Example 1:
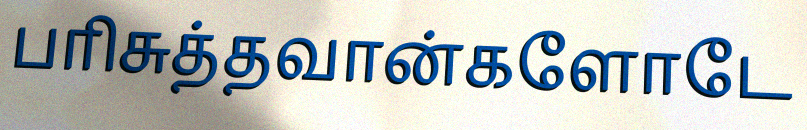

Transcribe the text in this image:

பரிசுத்தவான்களோடே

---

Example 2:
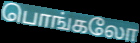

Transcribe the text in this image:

பொங்கலோ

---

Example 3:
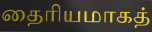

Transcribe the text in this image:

தைரியமாகத்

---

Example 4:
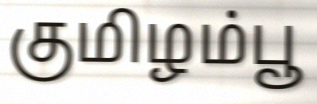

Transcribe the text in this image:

குமிழம்பூ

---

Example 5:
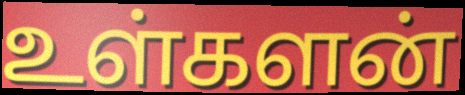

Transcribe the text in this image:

உள்களன்